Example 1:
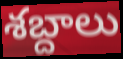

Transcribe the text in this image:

శబ్దాలు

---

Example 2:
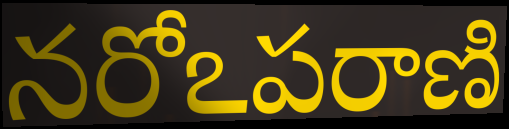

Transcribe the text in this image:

నరోఽపరాణి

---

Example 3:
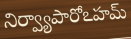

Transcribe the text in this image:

నిర్వ్యాపారోఽహమ్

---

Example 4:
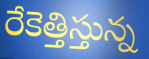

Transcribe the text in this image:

రేకెత్తిస్తున్న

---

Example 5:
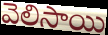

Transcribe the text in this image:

వెలిసాయి